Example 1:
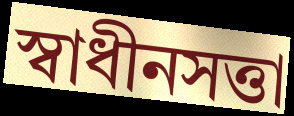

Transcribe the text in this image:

স্বাধীনসত্তা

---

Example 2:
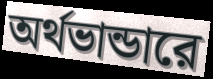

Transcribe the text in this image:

অর্থভান্ডারে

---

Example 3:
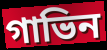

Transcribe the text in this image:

গাভিন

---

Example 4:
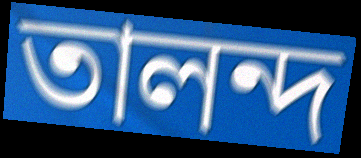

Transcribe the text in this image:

তালন্দ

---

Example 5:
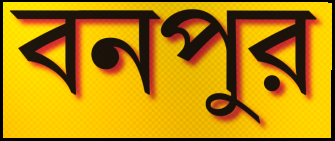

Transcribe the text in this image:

বনপুর